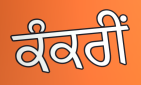
ਕੰਕਰੀਂ